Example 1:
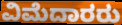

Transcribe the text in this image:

ವಿಮೆದಾರರು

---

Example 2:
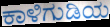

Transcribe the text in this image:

ಕಾಳಿಗುಡಿಯ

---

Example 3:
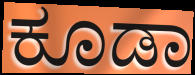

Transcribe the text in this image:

ಕೂಡಾ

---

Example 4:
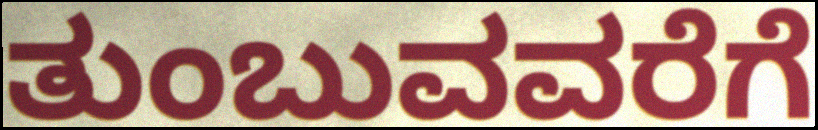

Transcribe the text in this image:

ತುಂಬುವವರೆಗೆ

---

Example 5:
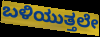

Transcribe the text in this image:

ಬಳಿಯುತ್ತಲೇ